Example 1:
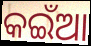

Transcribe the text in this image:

କଇଁଆ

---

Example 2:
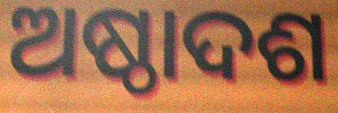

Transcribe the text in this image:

ଅଷ୍ଠାଦଶ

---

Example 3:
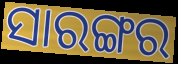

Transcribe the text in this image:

ସାରଙ୍ଗର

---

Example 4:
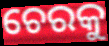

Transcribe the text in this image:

ଚେରକୁ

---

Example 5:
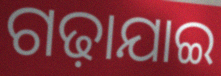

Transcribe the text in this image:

ଗଢ଼ାଯାଇ